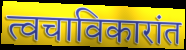
त्वचाविकारांत